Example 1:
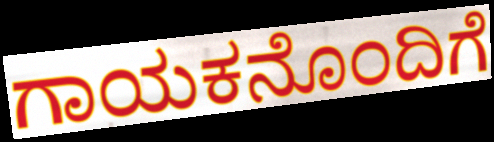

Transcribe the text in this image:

ಗಾಯಕನೊಂದಿಗೆ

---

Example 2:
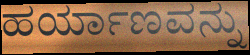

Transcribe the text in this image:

ಹರ್ಯಾಣವನ್ನು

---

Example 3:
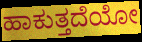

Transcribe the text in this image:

ಹಾಕುತ್ತದೆಯೋ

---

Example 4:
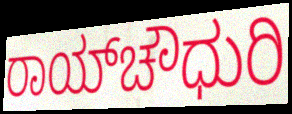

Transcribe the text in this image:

ರಾಯ್‌ಚೌಧುರಿ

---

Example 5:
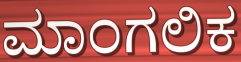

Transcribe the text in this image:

ಮಾಂಗಲಿಕ